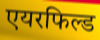
एयरफिल्ड